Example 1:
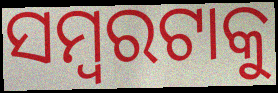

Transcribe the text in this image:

ସମ୍ବରଟାକୁ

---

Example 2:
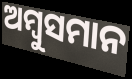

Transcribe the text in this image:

ଅମ୍ବୁସମାନ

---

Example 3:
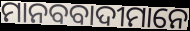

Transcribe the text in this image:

ମାନବବାଦୀମାନେ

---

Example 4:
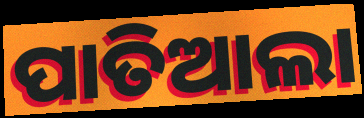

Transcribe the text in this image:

ପାତିଆଲା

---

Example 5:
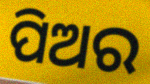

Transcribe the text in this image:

ପିଅର